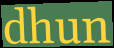
dhun